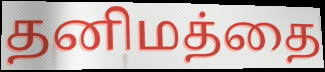
தனிமத்தை